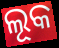
ଲୂକ